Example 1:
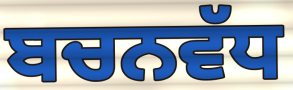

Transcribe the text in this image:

ਬਚਨਵੱਧ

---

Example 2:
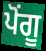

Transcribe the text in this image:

ਪੋਂਗੂ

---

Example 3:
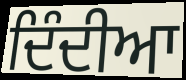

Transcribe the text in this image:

ਦਿੰਦੀਆ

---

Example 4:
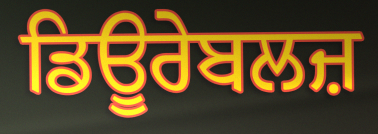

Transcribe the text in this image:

ਡਿਊਰੇਬਲਜ਼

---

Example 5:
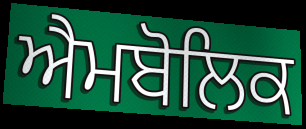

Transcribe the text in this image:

ਐਮਬੋਲਿਕ